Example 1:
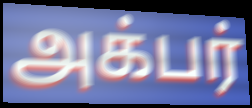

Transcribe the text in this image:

அக்பர்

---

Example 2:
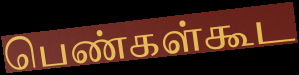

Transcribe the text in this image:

பெண்கள்கூட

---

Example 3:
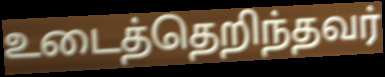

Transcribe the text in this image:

உடைத்தெறிந்தவர்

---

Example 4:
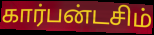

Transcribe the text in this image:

கார்பன்டசிம்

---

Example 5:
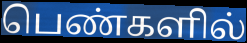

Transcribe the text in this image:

பெண்களில்